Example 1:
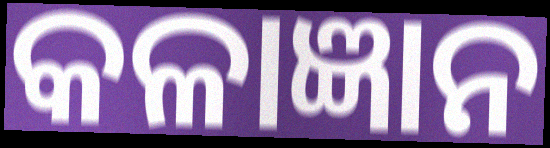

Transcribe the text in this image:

କଳାଜ୍ଞାନ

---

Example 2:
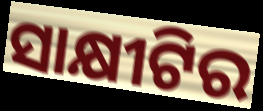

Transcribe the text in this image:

ସାକ୍ଷୀଟିର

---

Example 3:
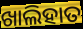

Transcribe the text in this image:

ଖାଲିହାତ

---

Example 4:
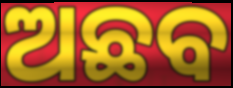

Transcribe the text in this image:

ଅଛବ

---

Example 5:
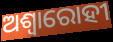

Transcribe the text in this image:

ଅଶ୍ଵାରୋହୀ